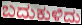
ಬದುಕುಳಿದು